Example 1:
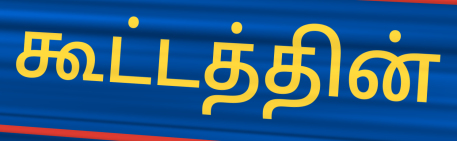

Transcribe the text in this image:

கூட்டத்தின்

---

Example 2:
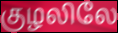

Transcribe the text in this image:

குழலிலே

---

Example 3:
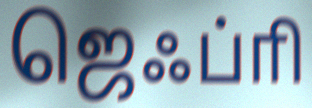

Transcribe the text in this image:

ஜெஃப்ரி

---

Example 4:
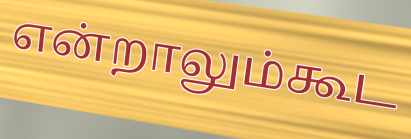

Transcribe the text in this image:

என்றாலும்கூட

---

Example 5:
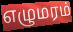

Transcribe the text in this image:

எழுமரம்